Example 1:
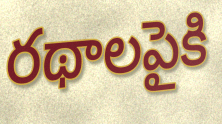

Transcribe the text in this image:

రథాలపైకి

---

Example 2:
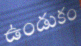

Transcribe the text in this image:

ఉండుకం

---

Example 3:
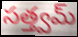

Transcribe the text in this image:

సత్త్వమ్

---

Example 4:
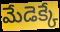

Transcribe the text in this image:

మేడెక్కే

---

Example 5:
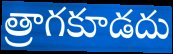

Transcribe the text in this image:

త్రాగకూడదు